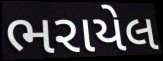
ભરાયેલ